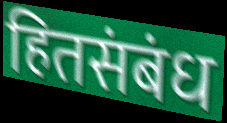
हितसंबंध